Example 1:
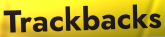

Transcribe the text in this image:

Trackbacks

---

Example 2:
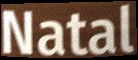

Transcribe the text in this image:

Natal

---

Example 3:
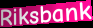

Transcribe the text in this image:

Riksbank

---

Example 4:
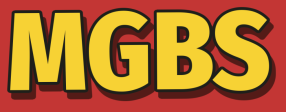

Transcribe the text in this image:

MGBS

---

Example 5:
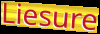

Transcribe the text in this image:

Liesure